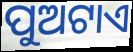
ପୁଅଟାଏ